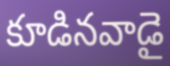
కూడినవాడై